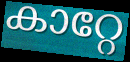
കാറ്റേ